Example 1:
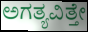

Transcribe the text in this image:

ಅಗತ್ಯವಿತ್ತೇ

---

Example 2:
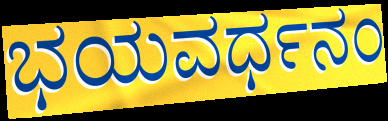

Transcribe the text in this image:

ಭಯವರ್ಧನಂ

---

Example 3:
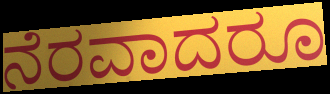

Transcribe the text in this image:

ನೆರವಾದರೂ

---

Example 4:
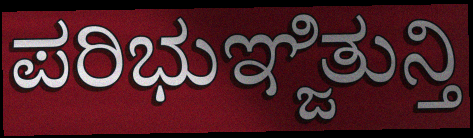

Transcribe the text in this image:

ಪರಿಭುಞ್ಜಿತುನ್ತಿ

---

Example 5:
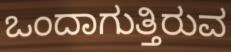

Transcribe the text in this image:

ಒಂದಾಗುತ್ತಿರುವ